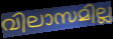
വിലാസമില്ല